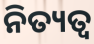
ନିତ୍ୟତ୍ୱ